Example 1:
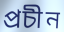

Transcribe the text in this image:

প্ৰচীন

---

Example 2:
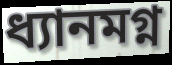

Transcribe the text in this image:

ধ্যানমগ্ন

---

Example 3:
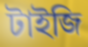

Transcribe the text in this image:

টাইজি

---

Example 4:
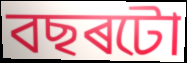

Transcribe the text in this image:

বছৰটো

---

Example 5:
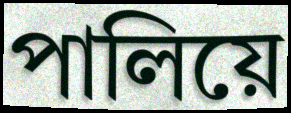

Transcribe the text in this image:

পালিয়ে